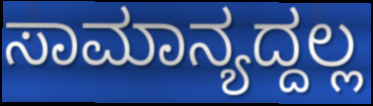
ಸಾಮಾನ್ಯದ್ದಲ್ಲ